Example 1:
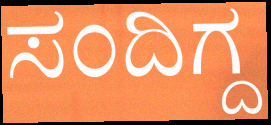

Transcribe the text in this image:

ಸಂದಿಗ್ದ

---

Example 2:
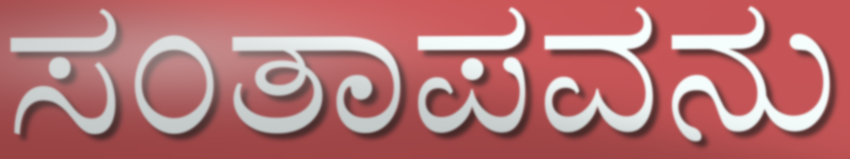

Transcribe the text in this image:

ಸಂತಾಪವನು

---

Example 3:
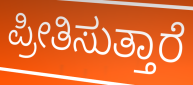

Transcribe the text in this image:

ಪ್ರೀತಿಸುತ್ತಾರೆ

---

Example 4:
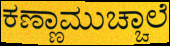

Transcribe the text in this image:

ಕಣ್ಣಾಮುಚ್ಚಾಲೆ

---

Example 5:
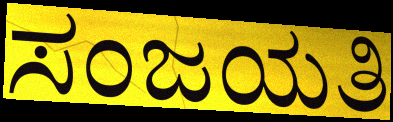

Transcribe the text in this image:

ಸಂಜಯತಿ